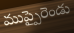
ముప్పైరెండు